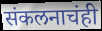
संकलनाचंही